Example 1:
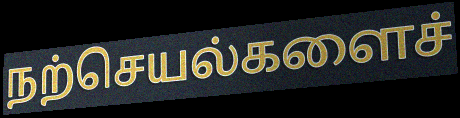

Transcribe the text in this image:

நற்செயல்களைச்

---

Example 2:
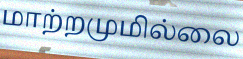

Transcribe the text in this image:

மாற்றமுமில்லை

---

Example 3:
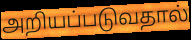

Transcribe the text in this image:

அறியப்படுவதால்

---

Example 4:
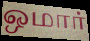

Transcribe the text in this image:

ஒமார்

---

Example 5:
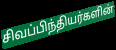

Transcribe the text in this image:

சிவப்பிந்தியர்களின்